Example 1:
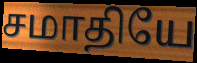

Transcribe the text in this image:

சமாதியே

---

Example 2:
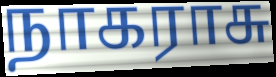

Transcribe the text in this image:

நாகராசு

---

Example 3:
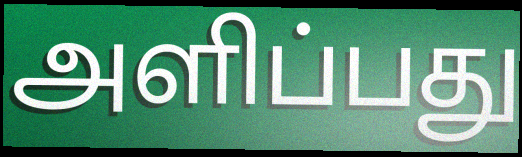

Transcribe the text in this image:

அளிப்பது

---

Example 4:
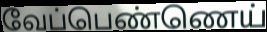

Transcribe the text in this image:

வேப்பெண்ணெய்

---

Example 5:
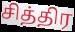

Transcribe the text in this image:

சித்திர